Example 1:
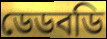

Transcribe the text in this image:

ডেডবডি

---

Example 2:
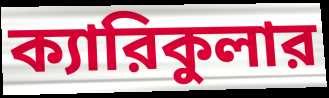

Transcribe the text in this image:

ক্যারিকুলার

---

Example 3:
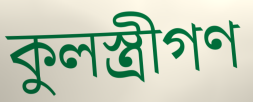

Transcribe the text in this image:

কুলস্ত্রীগণ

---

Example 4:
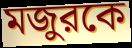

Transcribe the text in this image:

মজুরকে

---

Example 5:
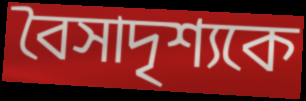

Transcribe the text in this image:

বৈসাদৃশ্যকে